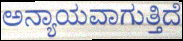
ಅನ್ಯಾಯವಾಗುತ್ತಿದೆ